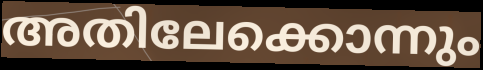
അതിലേക്കൊന്നും